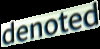
denoted